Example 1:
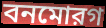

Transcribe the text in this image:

বনমোরগ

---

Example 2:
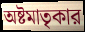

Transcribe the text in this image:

অষ্টমাতৃকার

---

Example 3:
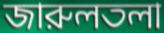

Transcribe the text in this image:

জারুলতলা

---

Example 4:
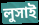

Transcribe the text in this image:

লুসাই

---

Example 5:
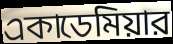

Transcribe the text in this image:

একাডেমিয়ার